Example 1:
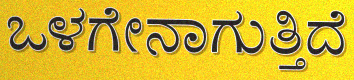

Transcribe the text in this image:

ಒಳಗೇನಾಗುತ್ತಿದೆ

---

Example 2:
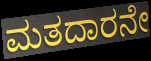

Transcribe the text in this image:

ಮತದಾರನೇ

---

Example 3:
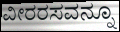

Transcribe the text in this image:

ವೀರರಸವನ್ನೂ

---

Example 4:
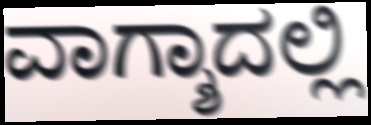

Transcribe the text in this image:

ವಾಗ್ಶಾದಲ್ಲಿ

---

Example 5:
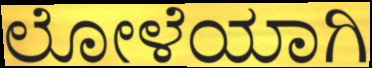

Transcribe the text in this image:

ಲೋಳೆಯಾಗಿ